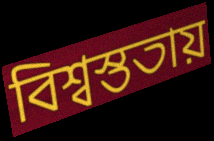
বিশ্বস্ততায়